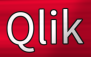
Qlik